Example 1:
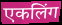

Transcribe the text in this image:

एकलिंग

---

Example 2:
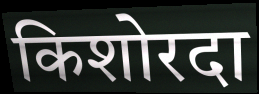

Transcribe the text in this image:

किशोरदा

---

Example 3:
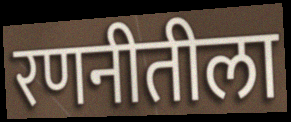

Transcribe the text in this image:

रणनीतीला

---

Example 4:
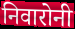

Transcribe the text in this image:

निवारोनी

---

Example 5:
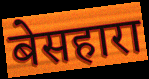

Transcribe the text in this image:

बेसहारा